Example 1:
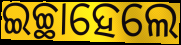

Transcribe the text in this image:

ଇଚ୍ଛାହେଲେ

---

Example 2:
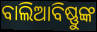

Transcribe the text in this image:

ବାଲିଆବିଷ୍ଣୁଙ୍କ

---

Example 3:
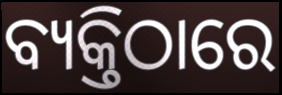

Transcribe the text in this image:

ବ୍ୟକ୍ତିଠାରେ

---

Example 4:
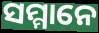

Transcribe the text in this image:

ସମ୍ମାନେ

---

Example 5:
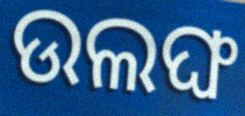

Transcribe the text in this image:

ଉଲଙ୍ଘ